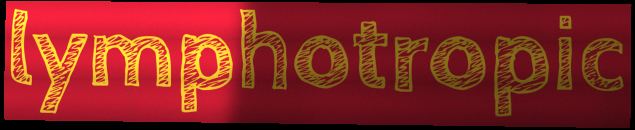
lymphotropic